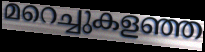
മറെച്ചുകളഞ്ഞ